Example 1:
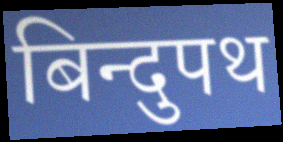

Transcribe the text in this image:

बिन्दुपथ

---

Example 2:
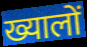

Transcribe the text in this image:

ख्यालों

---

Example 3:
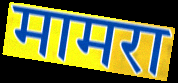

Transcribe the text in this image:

मामरा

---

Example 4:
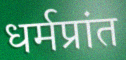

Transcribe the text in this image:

धर्मप्रांत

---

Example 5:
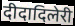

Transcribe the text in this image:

दीदादिलेरी